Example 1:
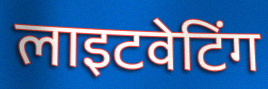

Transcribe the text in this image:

लाइटवेटिंग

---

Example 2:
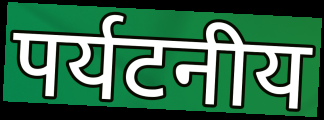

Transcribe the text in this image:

पर्यटनीय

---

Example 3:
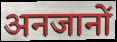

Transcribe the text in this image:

अनजानों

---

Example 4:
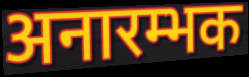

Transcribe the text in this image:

अनारम्भक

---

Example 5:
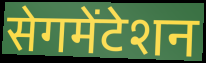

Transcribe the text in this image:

सेगमेंटेशन